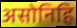
असोनिहि